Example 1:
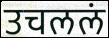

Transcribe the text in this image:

उचललं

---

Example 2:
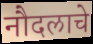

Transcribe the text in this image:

नौदलाचे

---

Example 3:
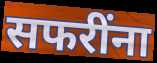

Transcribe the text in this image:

सफरींना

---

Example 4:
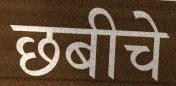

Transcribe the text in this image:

छबीचे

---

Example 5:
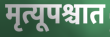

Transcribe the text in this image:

मृत्यूपश्चात